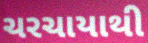
ચરચાયાથી